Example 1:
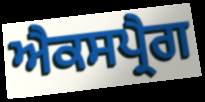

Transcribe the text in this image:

ਐਕਸਪ੍ਰੈਗ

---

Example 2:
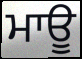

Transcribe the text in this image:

ਮਾਊ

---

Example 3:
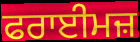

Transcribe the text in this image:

ਫਰਾਈਮਜ਼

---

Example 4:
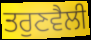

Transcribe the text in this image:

ਤਰੁਣਵੈਲੀ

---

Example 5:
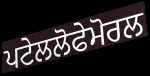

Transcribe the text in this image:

ਪਟੇਲਲੋਫੇਮੋਰਲ